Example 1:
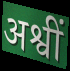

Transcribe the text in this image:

अश्वीं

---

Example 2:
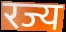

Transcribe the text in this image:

रज्य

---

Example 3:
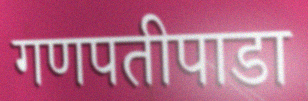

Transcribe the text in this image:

गणपतीपाडा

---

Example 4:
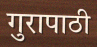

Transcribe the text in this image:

गुरापाठी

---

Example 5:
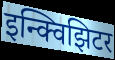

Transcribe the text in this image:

इन्क्विझिटर